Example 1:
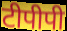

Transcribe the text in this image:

टीपीपी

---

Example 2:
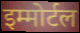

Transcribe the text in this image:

इम्मोर्टल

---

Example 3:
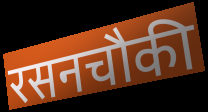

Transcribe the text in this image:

रसनचौकी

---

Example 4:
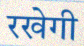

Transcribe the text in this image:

रखेगी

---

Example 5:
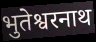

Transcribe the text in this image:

भुतेश्वरनाथ